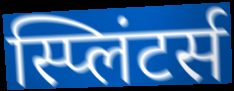
स्प्लिंटर्स